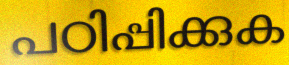
പഠിപ്പിക്കുക